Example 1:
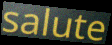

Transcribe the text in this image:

salute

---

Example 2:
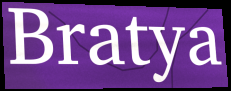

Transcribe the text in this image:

Bratya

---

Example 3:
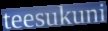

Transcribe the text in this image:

teesukuni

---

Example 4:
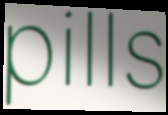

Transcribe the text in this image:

pills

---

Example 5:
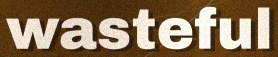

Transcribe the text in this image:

wasteful